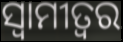
ସ୍ୱାମୀତ୍ୱର